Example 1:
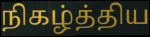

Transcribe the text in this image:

நிகழ்த்திய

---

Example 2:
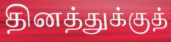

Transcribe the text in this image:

தினத்துக்குத்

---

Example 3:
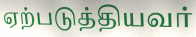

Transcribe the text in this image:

ஏற்படுத்தியவர்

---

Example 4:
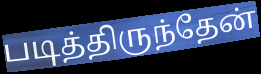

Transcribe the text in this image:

படித்திருந்தேன்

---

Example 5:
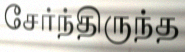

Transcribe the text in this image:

சேர்ந்திருந்த